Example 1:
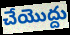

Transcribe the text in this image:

చేయొద్దు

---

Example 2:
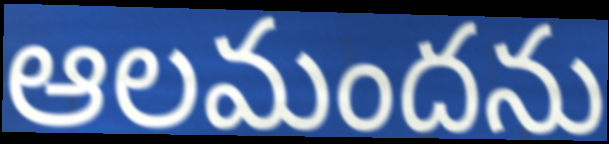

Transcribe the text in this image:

ఆలమందను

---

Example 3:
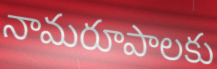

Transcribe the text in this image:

నామరూపాలకు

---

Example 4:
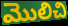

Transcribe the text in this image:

మొలిచి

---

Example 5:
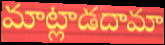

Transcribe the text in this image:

మాట్లాడదామా